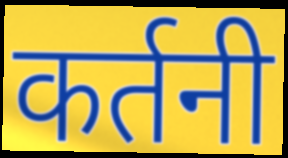
कर्तनी